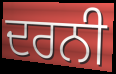
ਦਰਨੀ